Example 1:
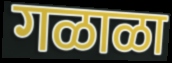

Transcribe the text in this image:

गळाळा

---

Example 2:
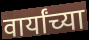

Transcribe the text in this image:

वार्यांच्या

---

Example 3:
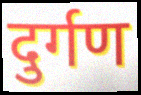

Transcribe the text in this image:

दुर्गण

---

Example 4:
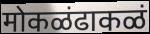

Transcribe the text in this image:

मोकळंढाकळं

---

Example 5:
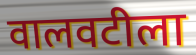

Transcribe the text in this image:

वालवटीला